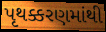
પૃથક્કરણમાંથી